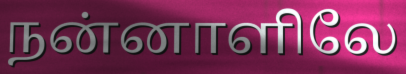
நன்னாளிலே